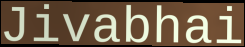
Jivabhai